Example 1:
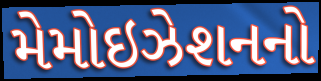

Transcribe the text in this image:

મેમોઇઝેશનનો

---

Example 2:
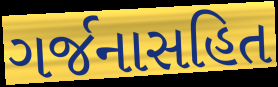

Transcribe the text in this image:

ગર્જનાસહિત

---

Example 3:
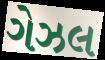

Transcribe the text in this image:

ગેઝલ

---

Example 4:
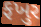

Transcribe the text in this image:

ફખુર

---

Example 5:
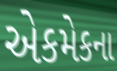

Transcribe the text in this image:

એકમેકના